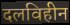
दलविहीन